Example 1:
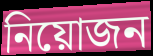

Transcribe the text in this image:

নিয়োজন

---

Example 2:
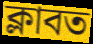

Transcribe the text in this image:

ক্লাবত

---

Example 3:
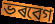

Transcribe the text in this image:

ভৰবেগ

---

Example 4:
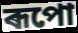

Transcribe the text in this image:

ৰূপো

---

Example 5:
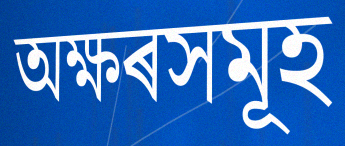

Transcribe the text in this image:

অক্ষৰসমূহ